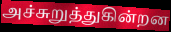
அச்சுறுத்துகின்றன